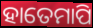
ହାତେମାପି